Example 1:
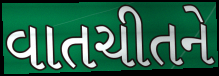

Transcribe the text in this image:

વાતચીતને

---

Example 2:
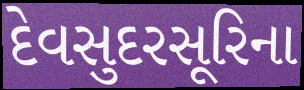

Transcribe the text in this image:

દેવસુદરસૂરિના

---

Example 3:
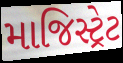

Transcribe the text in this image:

માજિસ્ટ્રેટ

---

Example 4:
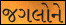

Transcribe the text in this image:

જગલોને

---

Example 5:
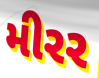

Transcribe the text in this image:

મીરર